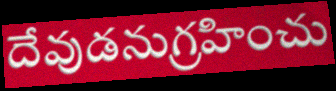
దేవుడనుగ్రహించు